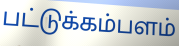
பட்டுக்கம்பளம்